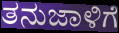
ತನುಜಾಳಿಗೆ